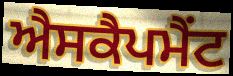
ਐਸਕੈਪਮੈਂਟ